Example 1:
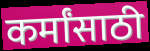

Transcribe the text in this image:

कर्मांसाठी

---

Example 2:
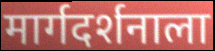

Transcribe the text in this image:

मार्गदर्शनाला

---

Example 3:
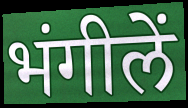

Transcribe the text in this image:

भंगीलें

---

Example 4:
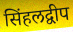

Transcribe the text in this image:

सिंहलद्वीप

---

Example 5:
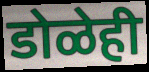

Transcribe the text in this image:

डोळेही